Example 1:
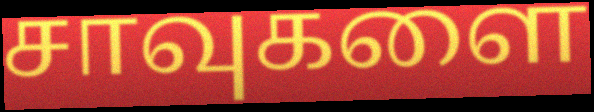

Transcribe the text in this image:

சாவுகளை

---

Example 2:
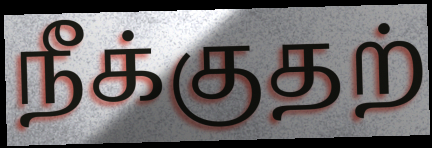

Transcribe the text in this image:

நீக்குதற்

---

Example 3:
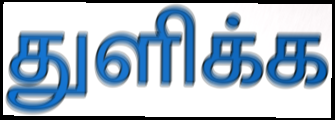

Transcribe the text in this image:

துளிக்க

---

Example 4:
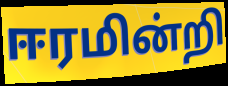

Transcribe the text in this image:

ஈரமின்றி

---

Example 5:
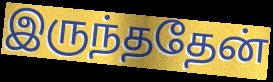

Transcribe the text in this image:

இருந்ததேன்